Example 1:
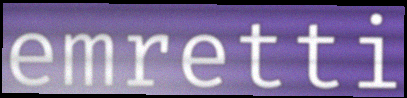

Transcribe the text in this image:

emretti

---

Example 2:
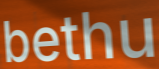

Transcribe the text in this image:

bethu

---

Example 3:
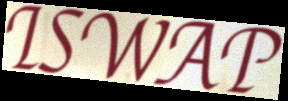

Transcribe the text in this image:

ISWAP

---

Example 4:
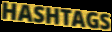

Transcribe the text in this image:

HASHTAGS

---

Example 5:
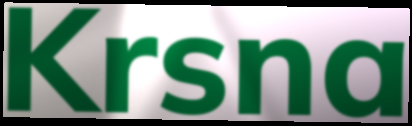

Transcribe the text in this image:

Krsna